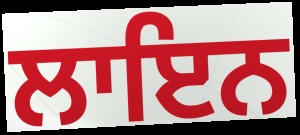
ਲਾਇਨ